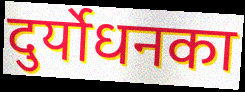
दुर्योधनका